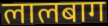
लालबाग